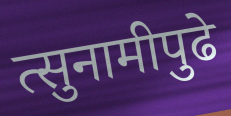
त्सुनामीपुढे